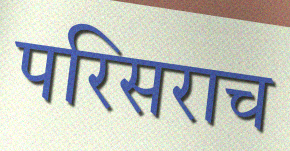
परिसराच